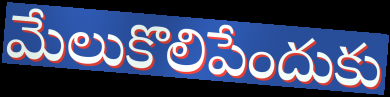
మేలుకొలిపేందుకు